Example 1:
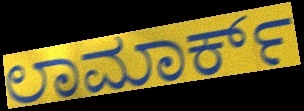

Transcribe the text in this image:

ಲಾಮಾರ್ಕ್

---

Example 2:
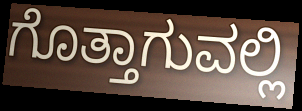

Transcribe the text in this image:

ಗೊತ್ತಾಗುವಲ್ಲಿ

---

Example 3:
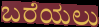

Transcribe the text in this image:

ಬರೆಯಲು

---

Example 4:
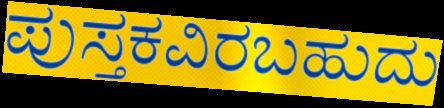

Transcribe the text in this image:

ಪುಸ್ತಕವಿರಬಹುದು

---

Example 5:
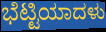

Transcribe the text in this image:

ಭೆಟ್ಟಿಯಾದಳು